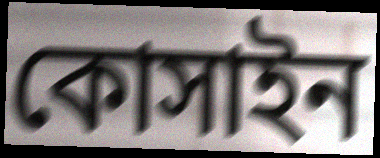
কোসাইন